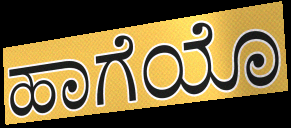
ಹಾಗೆಯೊ